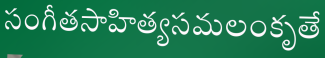
సంగీతసాహిత్యసమలంకృతే